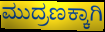
ಮುದ್ರಣಕ್ಕಾಗಿ